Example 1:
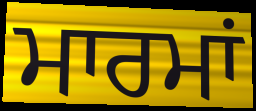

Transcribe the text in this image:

ਮਾਰਮਾਂ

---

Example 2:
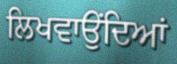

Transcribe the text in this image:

ਲਿਖਵਾਉਂਦਿਆਂ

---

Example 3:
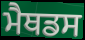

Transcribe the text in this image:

ਮੈਥਡਸ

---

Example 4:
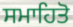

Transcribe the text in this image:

ਸਮਾਹਿਤੋ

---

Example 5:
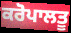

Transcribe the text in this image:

ਕਰੋਪਾਲਤੂ